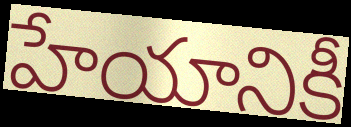
హేయానికీ